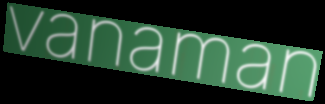
vanaman